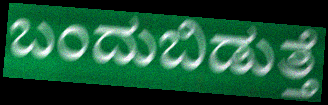
ಬಂದುಬಿಡುತ್ತೆ